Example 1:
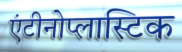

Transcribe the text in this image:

एंटीनोप्लास्टिक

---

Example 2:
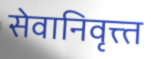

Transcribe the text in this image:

सेवानिवृत्त्त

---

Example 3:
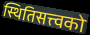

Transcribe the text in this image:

स्थितिसत्त्वको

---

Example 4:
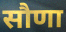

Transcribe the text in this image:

सौणा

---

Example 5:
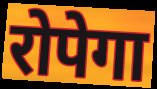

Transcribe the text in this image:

रोपेगा